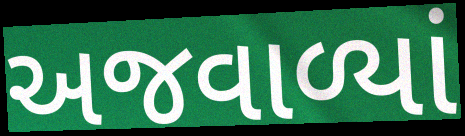
અજવાળ્યાં